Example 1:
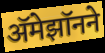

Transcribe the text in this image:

ॲमेझॉनने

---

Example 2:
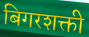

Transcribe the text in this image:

बिगरशक्ती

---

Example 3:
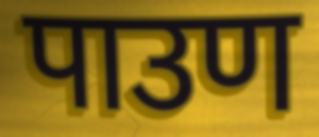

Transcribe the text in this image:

पाउण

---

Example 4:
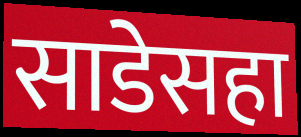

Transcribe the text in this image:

साडेसहा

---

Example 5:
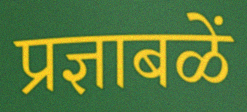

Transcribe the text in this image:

प्रज्ञाबळें